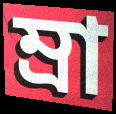
ম্রা